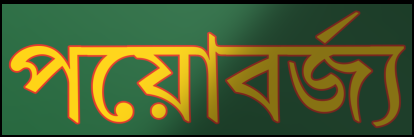
পয়োবর্জ্য